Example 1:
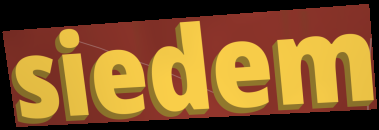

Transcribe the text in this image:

siedem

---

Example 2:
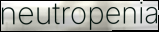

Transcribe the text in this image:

neutropenia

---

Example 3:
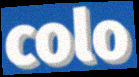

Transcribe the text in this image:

colo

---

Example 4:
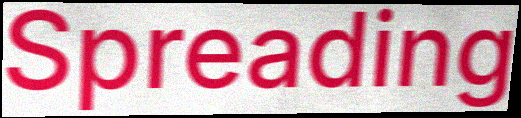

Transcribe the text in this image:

Spreading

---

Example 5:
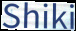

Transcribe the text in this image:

Shiki